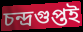
চন্দ্ৰগুপ্তই